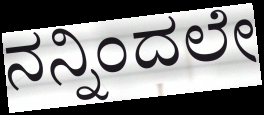
ನನ್ನಿಂದಲೇ